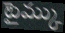
టైమ్కు